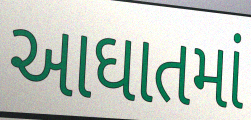
આઘાતમાં